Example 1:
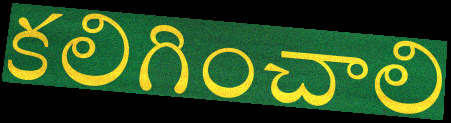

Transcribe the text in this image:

కలిగించాలి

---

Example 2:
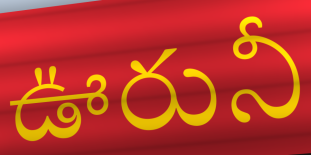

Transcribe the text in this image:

ఊరునీ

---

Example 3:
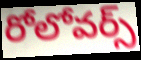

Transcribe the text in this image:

రోలోవర్స్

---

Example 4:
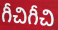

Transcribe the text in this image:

గీచిగీచి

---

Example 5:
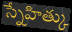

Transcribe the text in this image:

స్నేహిత్కు